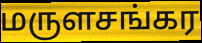
மருளசங்கர